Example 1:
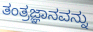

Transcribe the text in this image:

ತಂತ್ರಜ್ಞಾನವನ್ನು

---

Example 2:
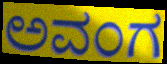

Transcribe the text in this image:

ಅವಂಗ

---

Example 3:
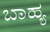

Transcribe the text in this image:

ಬಾಹ್ಯ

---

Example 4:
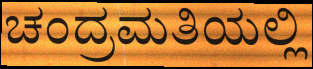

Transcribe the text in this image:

ಚಂದ್ರಮತಿಯಲ್ಲಿ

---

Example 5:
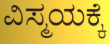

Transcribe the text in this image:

ವಿಸ್ಮಯಕ್ಕೆ